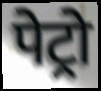
पेट्रो